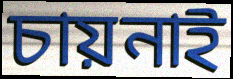
চায়নাই